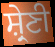
ਸ਼੍ਰੇਣੀ